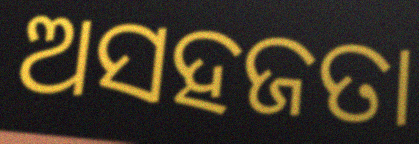
ଅସହଜତା